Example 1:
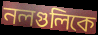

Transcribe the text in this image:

নলগুলিকে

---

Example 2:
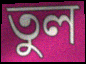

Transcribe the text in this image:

তুল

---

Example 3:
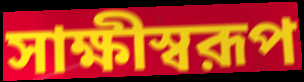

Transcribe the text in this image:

সাক্ষীস্বরূপ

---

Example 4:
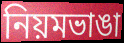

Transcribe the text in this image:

নিয়মভাঙা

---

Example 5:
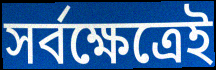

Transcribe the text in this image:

সর্বক্ষেত্রেই